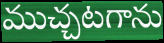
ముచ్చటగాను